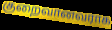
குறைவானவராக